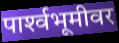
पार्श्‍वभूमीवर